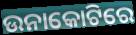
ଉନାକୋଟିରେ